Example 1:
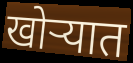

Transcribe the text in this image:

खोर्‍यात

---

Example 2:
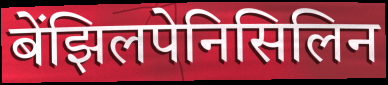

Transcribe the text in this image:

बेंझिलपेनिसिलिन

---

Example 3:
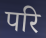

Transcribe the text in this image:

परि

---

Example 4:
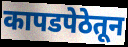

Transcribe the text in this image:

कापडपेठेतून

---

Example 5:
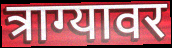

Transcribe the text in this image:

त्राग्यावर